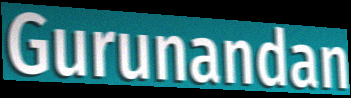
Gurunandan